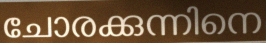
ചോരക്കുന്നിനെ